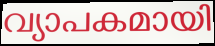
വ്യാപകമായി